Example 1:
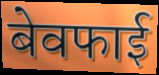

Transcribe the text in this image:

बेवफाई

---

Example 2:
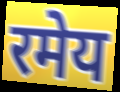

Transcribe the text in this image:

रमेय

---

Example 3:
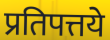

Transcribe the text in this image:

प्रतिपत्तये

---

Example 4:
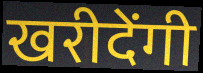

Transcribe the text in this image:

खरीदेंगी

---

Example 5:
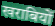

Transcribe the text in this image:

खराबियों